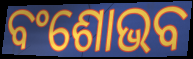
ବଂଶୋଭବ